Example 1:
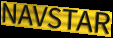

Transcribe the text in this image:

NAVSTAR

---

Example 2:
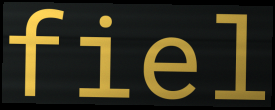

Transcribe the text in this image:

fiel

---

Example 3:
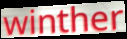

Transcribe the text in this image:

winther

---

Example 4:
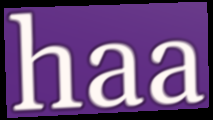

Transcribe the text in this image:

haa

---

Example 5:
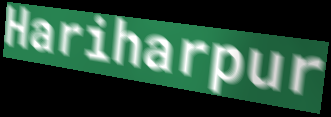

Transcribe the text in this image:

Hariharpur